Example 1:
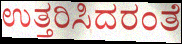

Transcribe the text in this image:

ಉತ್ತರಿಸಿದರಂತೆ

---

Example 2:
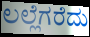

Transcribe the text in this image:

ಲಲ್ಲೆಗರೆದು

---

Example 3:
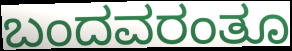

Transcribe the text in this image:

ಬಂದವರಂತೂ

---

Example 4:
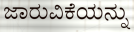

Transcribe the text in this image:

ಜಾರುವಿಕೆಯನ್ನು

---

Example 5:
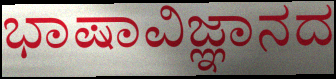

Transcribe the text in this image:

ಭಾಷಾವಿಜ್ಞಾನದ